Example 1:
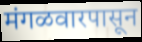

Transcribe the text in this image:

मंगळवारपासून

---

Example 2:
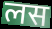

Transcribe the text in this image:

लस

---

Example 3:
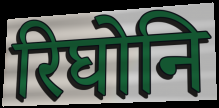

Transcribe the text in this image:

रिघोनि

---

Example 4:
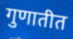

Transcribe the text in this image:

गुणातीत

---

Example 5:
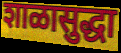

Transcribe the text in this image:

शाळासुद्धा